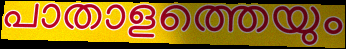
പാതാളത്തെയും